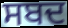
ਸਬਦ